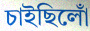
চাইছিলোঁ